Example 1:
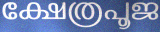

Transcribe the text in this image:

ക്ഷേത്രപൂജ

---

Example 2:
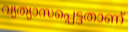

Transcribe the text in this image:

വ്യത്യാസപ്പെട്ടതാണ്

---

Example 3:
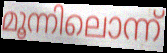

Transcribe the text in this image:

മൂന്നിലൊന്ന്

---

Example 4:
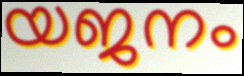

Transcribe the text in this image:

യജനം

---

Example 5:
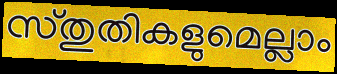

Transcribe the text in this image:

സ്തുതികളുമെല്ലാം